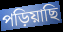
পড়িয়াছি